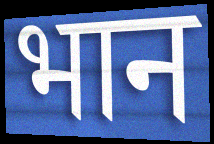
भान